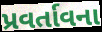
પ્રવર્તાવના